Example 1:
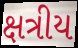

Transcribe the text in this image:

ક્ષત્રીય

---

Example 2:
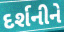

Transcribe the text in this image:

દર્શનીને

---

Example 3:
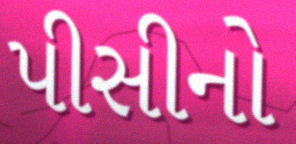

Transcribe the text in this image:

પીસીનો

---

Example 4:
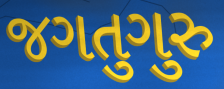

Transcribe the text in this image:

જગતુગુરુ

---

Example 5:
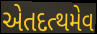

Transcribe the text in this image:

એતદત્થમેવ